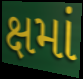
ક્ષમાં